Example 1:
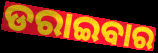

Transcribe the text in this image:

ଡରାଇବାର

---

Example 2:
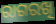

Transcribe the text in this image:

ରାଗରଖି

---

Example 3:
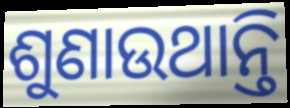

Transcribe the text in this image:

ଶୁଣାଉଥାନ୍ତି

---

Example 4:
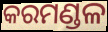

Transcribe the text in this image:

କରମଣ୍ଡଳ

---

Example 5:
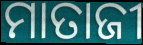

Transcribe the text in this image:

ମାତାଜୀ